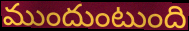
ముందుంటుంది